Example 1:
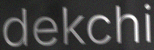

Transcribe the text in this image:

dekchi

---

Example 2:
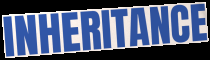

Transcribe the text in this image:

INHERITANCE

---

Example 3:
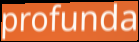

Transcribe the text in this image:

profunda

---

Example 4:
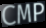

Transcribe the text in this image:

CMP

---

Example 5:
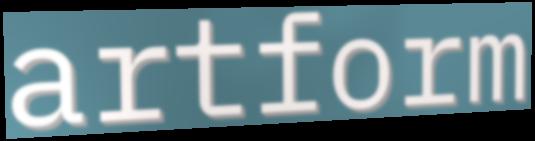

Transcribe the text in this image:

artform